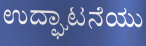
ಉದ್ಘಾಟನೆಯು